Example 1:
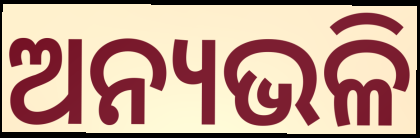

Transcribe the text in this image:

ଅନ୍ୟଭଳି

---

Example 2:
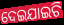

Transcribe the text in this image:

ଦେଇଯାଇଚି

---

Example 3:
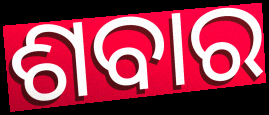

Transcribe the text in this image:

ଶବାର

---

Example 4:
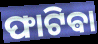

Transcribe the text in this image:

ଫାଟିଵା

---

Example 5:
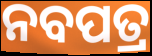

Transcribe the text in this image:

ନବପତ୍ର